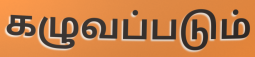
கழுவப்படும்